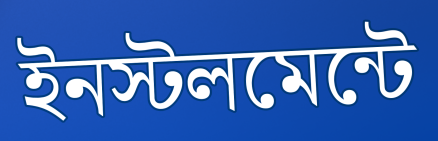
ইনস্টলমেন্টে